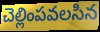
చెల్లింపవలసిన